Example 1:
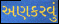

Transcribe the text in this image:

અણકરવું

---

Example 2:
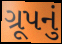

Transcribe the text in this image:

ગ્રૂપનું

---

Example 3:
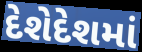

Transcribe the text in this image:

દેશેદેશમાં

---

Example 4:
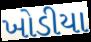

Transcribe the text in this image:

ખોડીયા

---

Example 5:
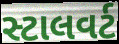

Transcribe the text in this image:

સ્ટાલવર્ટ